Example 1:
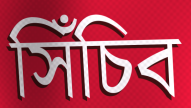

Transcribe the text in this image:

সিঁচিব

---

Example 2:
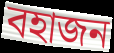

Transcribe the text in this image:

বহাজন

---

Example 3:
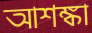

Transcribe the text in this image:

আশঙ্কা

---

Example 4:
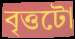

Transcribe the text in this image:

বৃত্তটো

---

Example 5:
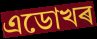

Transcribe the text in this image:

এডোখৰ